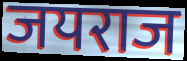
जयराज